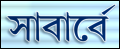
সাবার্বে